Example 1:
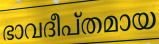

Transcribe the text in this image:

ഭാവദീപ്തമായ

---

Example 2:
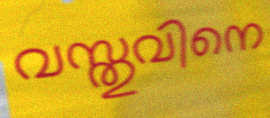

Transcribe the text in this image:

വസ്തുവിനെ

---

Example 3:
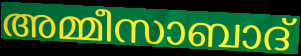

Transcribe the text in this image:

അമ്മീസാബാദ്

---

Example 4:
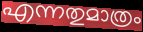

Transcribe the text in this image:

എന്നതുമാത്രം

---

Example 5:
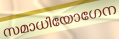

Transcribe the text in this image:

സമാധിയോഗേന